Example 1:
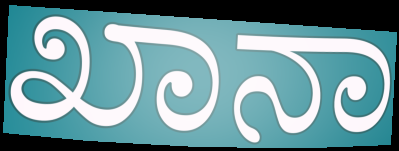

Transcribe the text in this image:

ಖಾನಾ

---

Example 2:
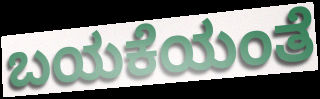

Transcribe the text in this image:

ಬಯಕೆಯಂತೆ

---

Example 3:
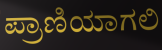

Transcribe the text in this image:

ಪ್ರಾಣಿಯಾಗಲಿ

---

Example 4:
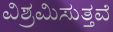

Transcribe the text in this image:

ವಿಶ್ರಮಿಸುತ್ತವೆ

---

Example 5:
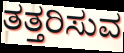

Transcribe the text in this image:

ತತ್ತರಿಸುವ